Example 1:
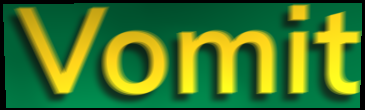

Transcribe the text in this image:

Vomit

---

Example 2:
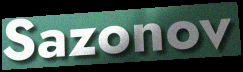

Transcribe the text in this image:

Sazonov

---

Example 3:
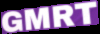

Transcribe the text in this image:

GMRT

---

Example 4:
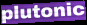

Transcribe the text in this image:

plutonic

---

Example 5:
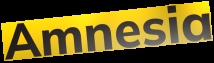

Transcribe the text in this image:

Amnesia